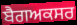
ਬੈਗਅਕਸਰ